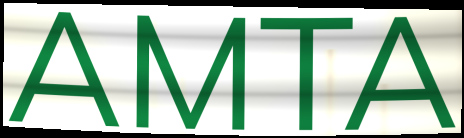
AMTA